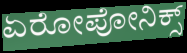
ಏರೋಪೋನಿಕ್ಸ್